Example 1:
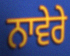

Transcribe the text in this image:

ਨਾਵੇਰੇ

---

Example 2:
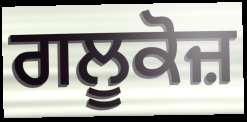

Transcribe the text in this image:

ਗਲੂਕੋਜ਼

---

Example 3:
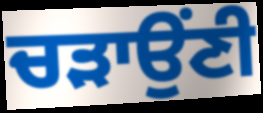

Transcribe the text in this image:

ਚੜਾਉਂਣੀ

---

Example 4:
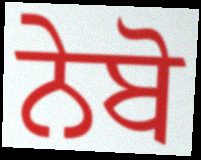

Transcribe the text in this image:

ਨੇਬੋ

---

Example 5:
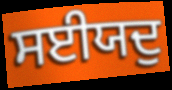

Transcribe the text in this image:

ਸਈਯਦੁ